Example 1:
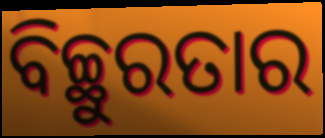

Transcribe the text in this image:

ବିଚ୍ଛୁରତାର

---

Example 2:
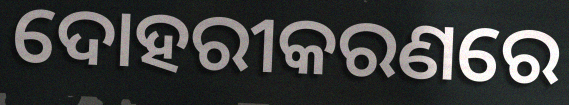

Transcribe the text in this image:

ଦୋହରୀକରଣରେ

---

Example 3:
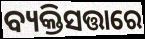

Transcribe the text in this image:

ବ୍ୟକ୍ତିସତ୍ତାରେ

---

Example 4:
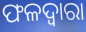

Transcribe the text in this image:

ଫଳଦ୍ୱାରା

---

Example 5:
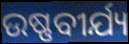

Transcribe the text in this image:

ଉଷ୍ଣବୀର୍ଯ୍ୟ